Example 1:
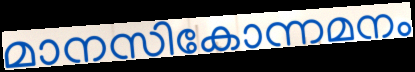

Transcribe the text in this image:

മാനസികോന്നമനം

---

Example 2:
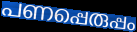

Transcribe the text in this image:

പണപ്പെരുപ്പം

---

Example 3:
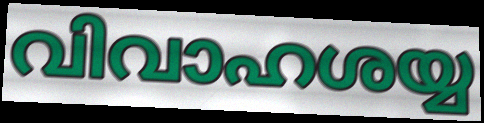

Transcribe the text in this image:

വിവാഹശയ്യ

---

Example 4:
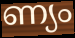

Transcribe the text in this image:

ണ്യം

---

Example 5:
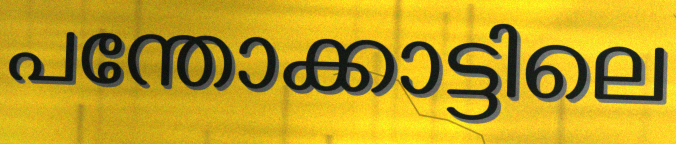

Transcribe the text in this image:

പന്തോക്കാട്ടിലെ